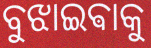
ବୁଝାଇଵାକୁ